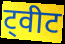
ट्‍वीट